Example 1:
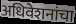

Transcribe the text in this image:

अधिवेशनांचा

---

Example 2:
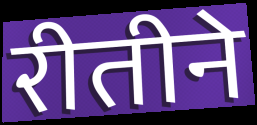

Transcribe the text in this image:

रीतीने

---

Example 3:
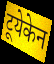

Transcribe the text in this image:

टूयेकेन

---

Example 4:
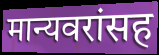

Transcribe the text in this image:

मान्यवरांसह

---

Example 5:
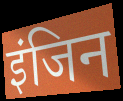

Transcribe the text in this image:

इंजिन